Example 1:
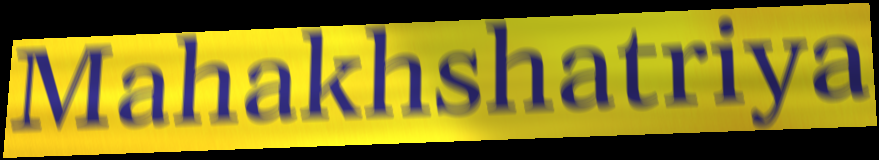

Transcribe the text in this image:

Mahakhshatriya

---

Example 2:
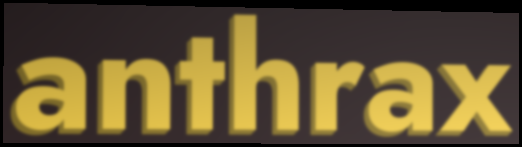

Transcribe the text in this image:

anthrax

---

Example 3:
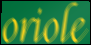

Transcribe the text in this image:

oriole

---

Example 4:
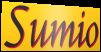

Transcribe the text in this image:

Sumio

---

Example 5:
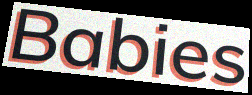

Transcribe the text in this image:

Babies